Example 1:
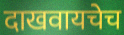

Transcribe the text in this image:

दाखवायचेच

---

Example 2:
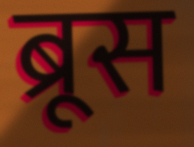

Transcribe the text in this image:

ब्रूस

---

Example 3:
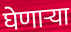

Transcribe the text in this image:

घेणाऱ्या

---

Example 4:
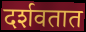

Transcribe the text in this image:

दर्शवतात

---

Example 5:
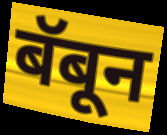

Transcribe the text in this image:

बॅबून